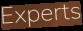
Experts